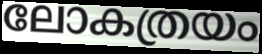
ലോകത്രയം